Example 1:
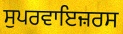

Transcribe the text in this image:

ਸੁਪਰਵਾਇਜ਼ਰਸ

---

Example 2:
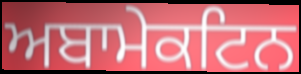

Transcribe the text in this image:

ਅਬਾਮੇਕਟਿਨ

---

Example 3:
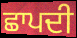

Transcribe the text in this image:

ਛਾਪਦੀ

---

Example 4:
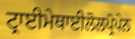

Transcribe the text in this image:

ਟ੍ਰਾਈਮੇਥਾਈਲੋਲਪ੍ਰੋਪੇਨ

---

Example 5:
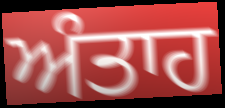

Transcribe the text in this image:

ਅੰਤਾਹ